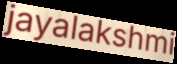
jayalakshmi